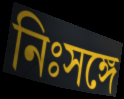
নিঃসঙ্গে